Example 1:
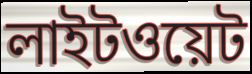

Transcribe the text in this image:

লাইটওয়েট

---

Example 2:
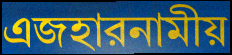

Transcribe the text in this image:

এজহারনামীয়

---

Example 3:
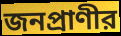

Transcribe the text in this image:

জনপ্রাণীর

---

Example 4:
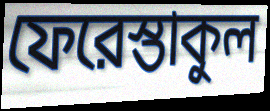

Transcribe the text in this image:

ফেরেস্তাকুল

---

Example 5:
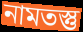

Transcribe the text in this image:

নামতস্তু